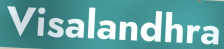
Visalandhra